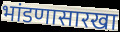
भांडणासारखा